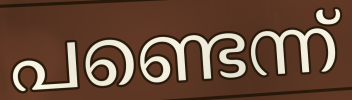
പണ്ടെന്ന്